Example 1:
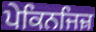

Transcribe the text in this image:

ਪੇਕਿਨਜਿਜ਼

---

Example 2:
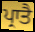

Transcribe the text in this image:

ਪ੍ਰਾਤੈ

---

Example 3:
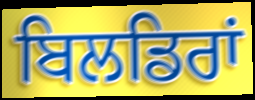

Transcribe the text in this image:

ਬਿਲਡਿਰਾਂ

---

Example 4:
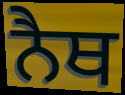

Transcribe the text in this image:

ਨੈਥ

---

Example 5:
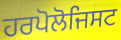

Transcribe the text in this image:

ਹਰਪੋਲੋਜਿਸਟ